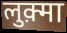
लुक़्मा